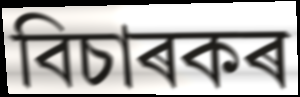
বিচাৰকৰ